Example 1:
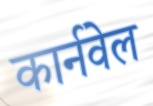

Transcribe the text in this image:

कार्नवेल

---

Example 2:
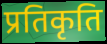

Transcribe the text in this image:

प्रतिकृति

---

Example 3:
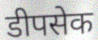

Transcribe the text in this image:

डीपसेक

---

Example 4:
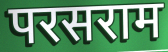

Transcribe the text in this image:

परसराम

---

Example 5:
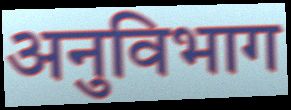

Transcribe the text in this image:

अनुविभाग